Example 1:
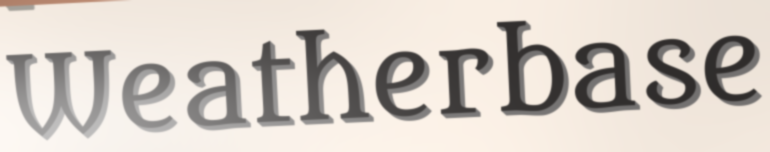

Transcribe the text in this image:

Weatherbase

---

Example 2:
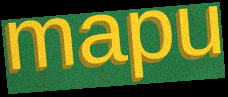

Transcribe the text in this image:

mapu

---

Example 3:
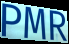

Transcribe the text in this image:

PMR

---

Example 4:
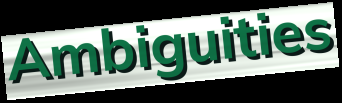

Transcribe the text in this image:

Ambiguities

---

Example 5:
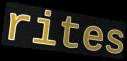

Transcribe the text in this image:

rites